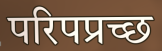
परिपप्रच्छ